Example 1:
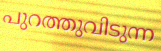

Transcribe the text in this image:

പുറത്തുവിടുന്ന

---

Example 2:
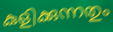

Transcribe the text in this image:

കുളിക്കുന്നതും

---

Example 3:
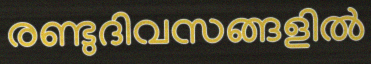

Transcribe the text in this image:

രണ്ടുദിവസങ്ങളിൽ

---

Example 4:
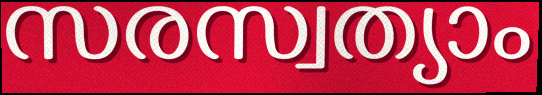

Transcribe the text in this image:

സരസ്വത്യാം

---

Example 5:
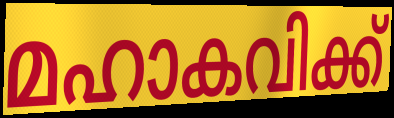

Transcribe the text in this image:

മഹാകവിക്ക്